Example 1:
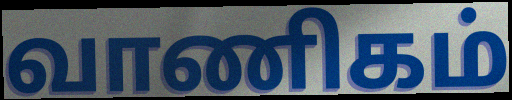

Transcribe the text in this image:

வாணிகம்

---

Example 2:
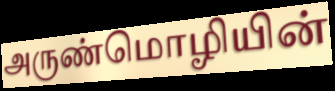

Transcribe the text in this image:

அருண்மொழியின்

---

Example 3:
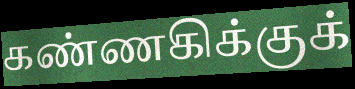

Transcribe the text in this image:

கண்ணகிக்குக்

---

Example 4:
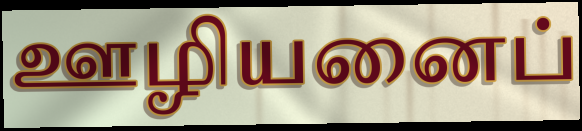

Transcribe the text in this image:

ஊழியனைப்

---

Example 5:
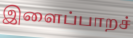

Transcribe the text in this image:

இளைப்பாறச்